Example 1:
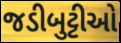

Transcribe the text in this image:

જડીબુટ્ટીઓ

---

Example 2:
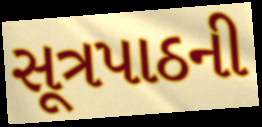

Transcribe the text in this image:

સૂત્રપાઠની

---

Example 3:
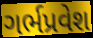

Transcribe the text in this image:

ગર્ભપ્રવેશ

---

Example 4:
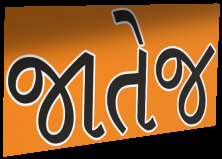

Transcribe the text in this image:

જાતેજ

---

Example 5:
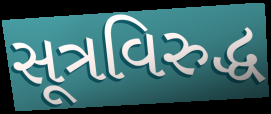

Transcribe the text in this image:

સૂત્રવિરુદ્ધ